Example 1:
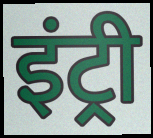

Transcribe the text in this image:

इंट्री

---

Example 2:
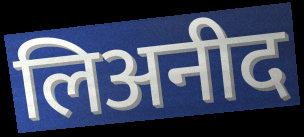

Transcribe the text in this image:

लिअनीद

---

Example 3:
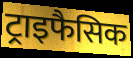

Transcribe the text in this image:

ट्राइफैसिक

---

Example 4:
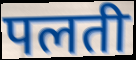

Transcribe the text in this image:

पलती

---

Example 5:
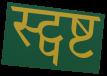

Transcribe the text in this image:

स्ट्पष्ट